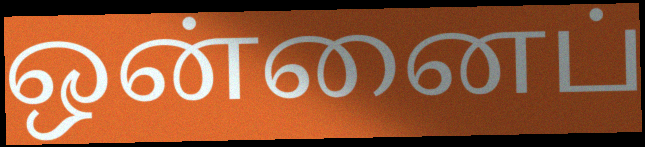
ஒன்னைப்